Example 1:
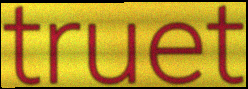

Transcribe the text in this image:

truet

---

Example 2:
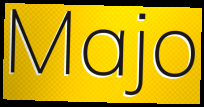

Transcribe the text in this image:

Majo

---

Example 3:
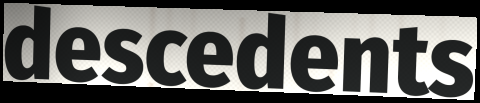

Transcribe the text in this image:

descedents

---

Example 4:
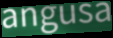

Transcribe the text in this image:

angusa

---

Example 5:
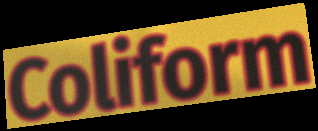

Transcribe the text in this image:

Coliform